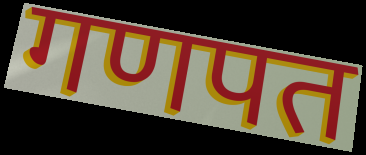
गणपत